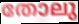
തോലു